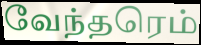
வேந்தரெம்